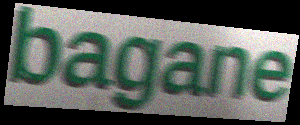
bagane